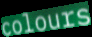
colours